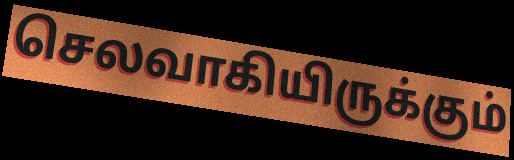
செலவாகியிருக்கும்